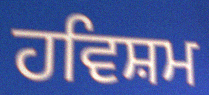
ਹਵਿਸ਼ਮ